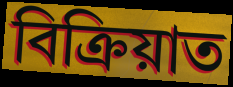
বিক্ৰিয়াত